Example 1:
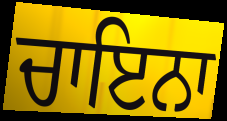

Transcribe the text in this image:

ਚਾਇਨਾ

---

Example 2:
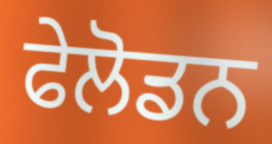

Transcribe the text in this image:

ਫੇਲੋਡਨ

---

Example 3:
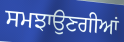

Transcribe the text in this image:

ਸਮਝਾਉਣਗੀਆਂ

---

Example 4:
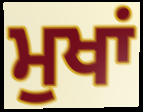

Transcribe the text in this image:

ਮੁਖਾਂ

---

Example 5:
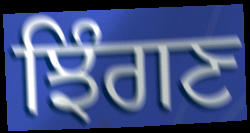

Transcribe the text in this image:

ਝਿੰਗਣ